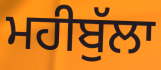
ਮਹੀਬੁੱਲਾ